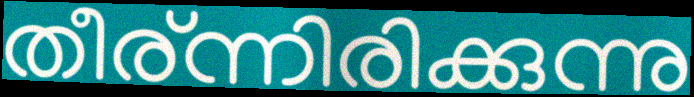
തീര്ന്നിരിക്കുന്നു